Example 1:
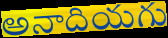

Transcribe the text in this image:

అనాదియగు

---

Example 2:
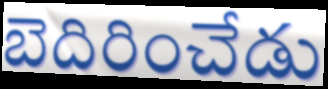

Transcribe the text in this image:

బెదిరించేడు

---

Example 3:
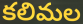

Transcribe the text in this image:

కలిమల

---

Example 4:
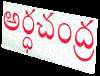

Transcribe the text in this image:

అర్ధచంద్ర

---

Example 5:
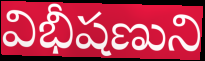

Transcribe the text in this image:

విభీషణుని